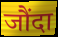
जौंदा